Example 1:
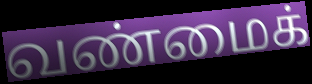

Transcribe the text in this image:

வண்மைக்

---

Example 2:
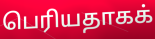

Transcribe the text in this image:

பெரியதாகக்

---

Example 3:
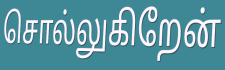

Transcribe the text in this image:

சொல்லுகிறேன்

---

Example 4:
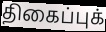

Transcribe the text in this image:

திகைப்புக்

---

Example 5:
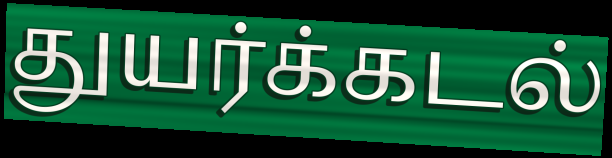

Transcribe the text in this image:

துயர்க்கடல்